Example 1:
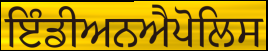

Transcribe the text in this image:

ਇੰਡੀਅਨਐਪੋਲਿਸ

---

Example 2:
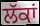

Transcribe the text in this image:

ਲੱਕਾਂ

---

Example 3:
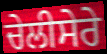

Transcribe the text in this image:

ਚੇਲੀਸੇਰੇ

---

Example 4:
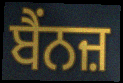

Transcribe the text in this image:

ਬੈਂਨਜ਼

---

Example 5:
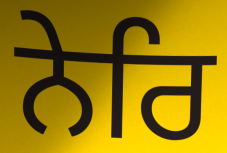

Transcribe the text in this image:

ਨੇਰਿ